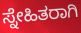
ಸ್ನೇಹಿತರಾಗಿ